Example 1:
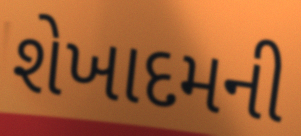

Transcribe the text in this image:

શેખાદમની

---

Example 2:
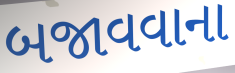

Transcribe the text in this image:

બજાવવાના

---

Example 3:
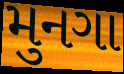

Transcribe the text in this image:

મુનગા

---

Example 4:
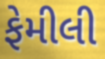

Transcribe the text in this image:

ફેમીલી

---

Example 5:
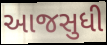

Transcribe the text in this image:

આજસુધી